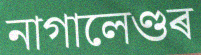
নাগালেণ্ডৰ